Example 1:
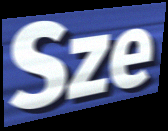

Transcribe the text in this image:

Sze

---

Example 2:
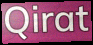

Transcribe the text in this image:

Qirat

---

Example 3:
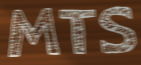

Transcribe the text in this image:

MTS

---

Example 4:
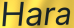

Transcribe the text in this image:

Hara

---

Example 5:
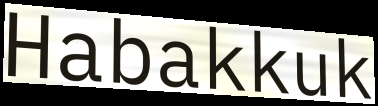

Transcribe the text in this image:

Habakkuk